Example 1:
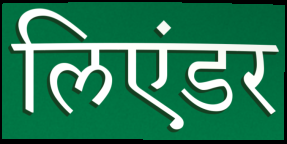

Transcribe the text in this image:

लिएंडर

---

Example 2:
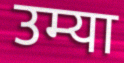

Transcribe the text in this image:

उम्या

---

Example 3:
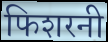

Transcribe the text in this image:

फिशरनी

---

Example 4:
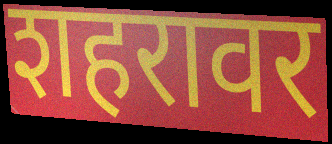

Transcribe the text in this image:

शहरावर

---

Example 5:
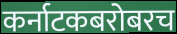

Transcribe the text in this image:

कर्नाटकबरोबरच